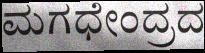
ಮಗಧೇಂದ್ರದ